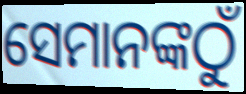
ସେମାନଙ୍କଠୁଁ